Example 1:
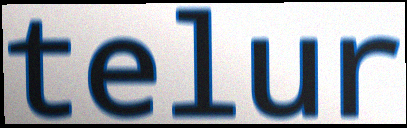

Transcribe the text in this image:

telur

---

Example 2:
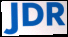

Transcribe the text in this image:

JDR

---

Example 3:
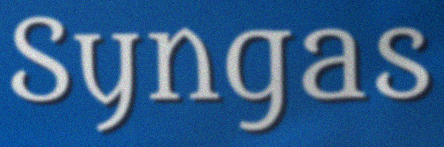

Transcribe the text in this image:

Syngas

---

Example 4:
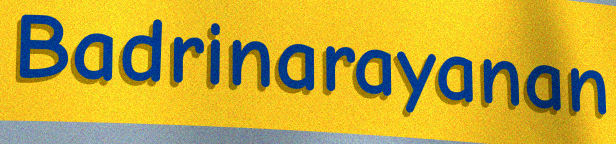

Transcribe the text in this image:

Badrinarayanan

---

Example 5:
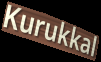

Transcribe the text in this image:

Kurukkal